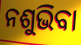
ନଶୁଭିବା